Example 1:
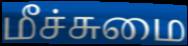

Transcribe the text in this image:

மீச்சுமை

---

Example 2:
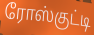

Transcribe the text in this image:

ரோஸ்குட்டி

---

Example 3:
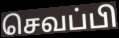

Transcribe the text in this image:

செவப்பி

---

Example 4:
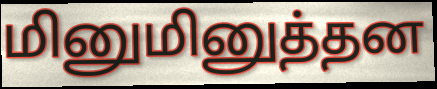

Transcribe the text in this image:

மினுமினுத்தன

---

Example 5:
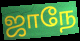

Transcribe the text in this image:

ஜாநே